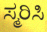
ಸ್ಮರಿಸಿ